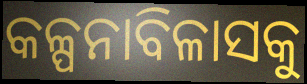
କଳ୍ପନାବିଳାସକୁ